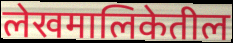
लेखमालिकेतील